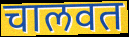
चालवत